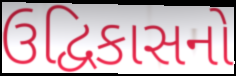
ઉદ્વિકાસનો